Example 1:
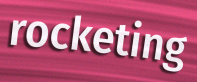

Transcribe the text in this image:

rocketing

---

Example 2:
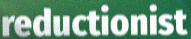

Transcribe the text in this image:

reductionist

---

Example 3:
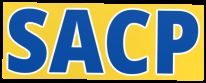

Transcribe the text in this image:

SACP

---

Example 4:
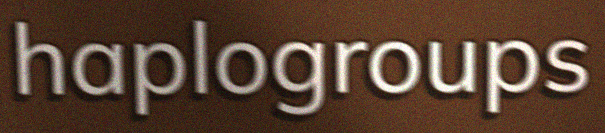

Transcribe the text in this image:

haplogroups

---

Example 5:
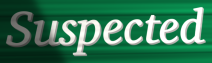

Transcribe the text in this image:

Suspected